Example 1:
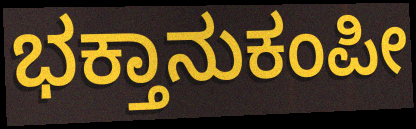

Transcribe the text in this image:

ಭಕ್ತಾನುಕಂಪೀ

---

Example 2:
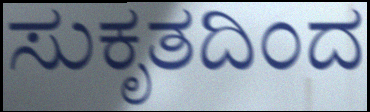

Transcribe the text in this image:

ಸುಕೃತದಿಂದ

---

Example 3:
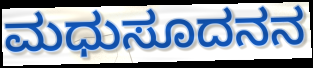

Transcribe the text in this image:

ಮಧುಸೂದನನ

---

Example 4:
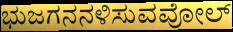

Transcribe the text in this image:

ಭುಜಗನನಳಿಸುವವೋಲ್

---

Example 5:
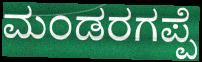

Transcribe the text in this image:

ಮಂಡರಗಪ್ಪೆ